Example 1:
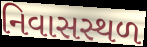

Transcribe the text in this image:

નિવાસસ્થળ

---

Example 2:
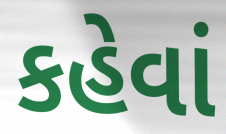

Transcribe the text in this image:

કહેવાં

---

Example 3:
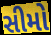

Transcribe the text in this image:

સીમો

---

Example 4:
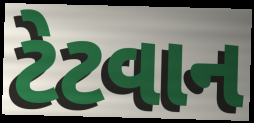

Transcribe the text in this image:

ટેટવાન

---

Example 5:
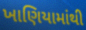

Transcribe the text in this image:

ખાણિયામાંથી